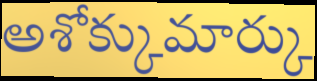
అశోక్కుమార్కు